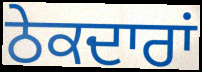
ਠੇਕਦਾਰਾਂ